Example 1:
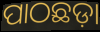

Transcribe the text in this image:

ପାଠଛଡ଼ା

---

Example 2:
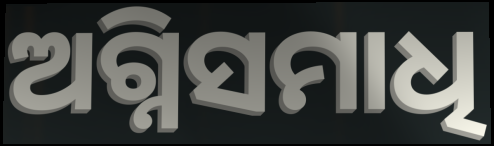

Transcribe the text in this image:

ଅଗ୍ନିସମାଧି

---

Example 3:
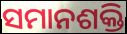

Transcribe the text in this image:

ସମାନଶକ୍ତି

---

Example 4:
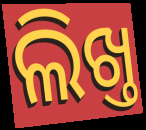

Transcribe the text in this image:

ଲିଖ୍ତ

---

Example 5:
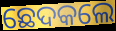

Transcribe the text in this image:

ଛେଦକଲେ